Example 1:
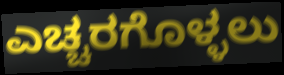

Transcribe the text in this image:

ಎಚ್ಚರಗೊಳ್ಳಲು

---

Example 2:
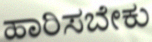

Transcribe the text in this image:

ಹಾರಿಸಬೇಕು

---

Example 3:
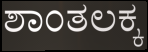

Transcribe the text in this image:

ಶಾಂತಲಕ್ಕ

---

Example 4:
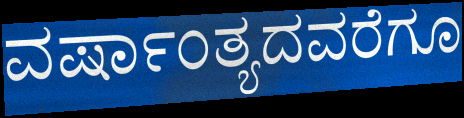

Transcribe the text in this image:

ವರ್ಷಾಂತ್ಯದವರೆಗೂ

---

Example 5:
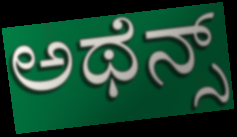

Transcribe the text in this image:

ಅಥೆನ್ಸ್